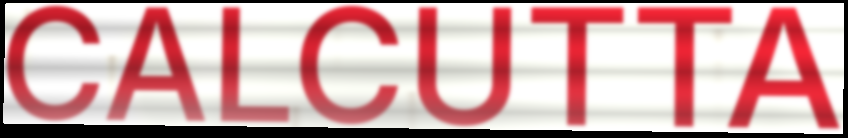
CALCUTTA